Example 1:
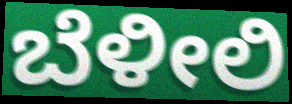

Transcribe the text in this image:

ಬೆಳೀಲಿ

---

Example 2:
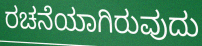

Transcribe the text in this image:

ರಚನೆಯಾಗಿರುವುದು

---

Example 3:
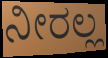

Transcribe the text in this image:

ನೀರಲ್ಲ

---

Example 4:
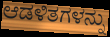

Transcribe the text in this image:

ಆಡಳಿತಗಳನ್ನು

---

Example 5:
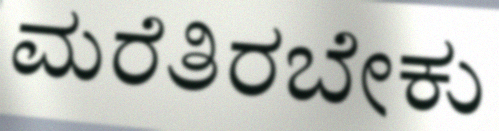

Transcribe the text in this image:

ಮರೆತಿರಬೇಕು